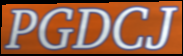
PGDCJ